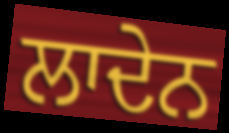
ਲਾਦੇਨ